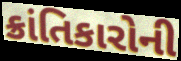
ક્રાંતિકારોની